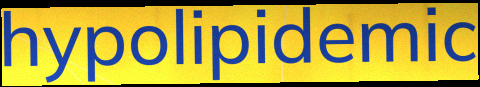
hypolipidemic